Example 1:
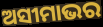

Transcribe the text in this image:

ଅସୀମାଭର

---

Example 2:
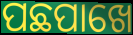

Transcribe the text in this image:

ପଛପାଖେ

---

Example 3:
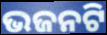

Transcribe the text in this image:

ଭଜନଟି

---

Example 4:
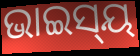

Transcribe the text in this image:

ଭାଇସ୍‌ୟ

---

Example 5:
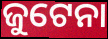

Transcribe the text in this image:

ଜୁଟେନା